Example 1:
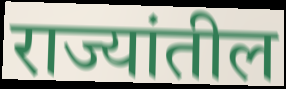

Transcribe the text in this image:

राज्यांतील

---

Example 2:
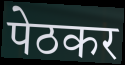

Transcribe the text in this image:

पेठकर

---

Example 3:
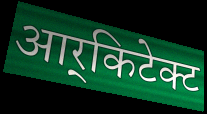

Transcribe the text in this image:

आर्किटेक्ट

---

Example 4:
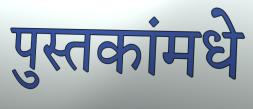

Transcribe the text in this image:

पुस्तकांमधे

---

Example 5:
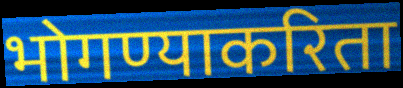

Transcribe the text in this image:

भोगण्याकरिता